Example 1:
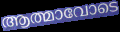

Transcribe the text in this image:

ആത്മാവോടെ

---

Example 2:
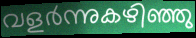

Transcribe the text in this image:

വളർന്നുകഴിഞ്ഞു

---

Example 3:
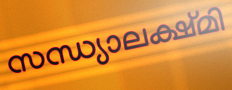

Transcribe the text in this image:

സന്ധ്യാലക്ഷ്മി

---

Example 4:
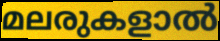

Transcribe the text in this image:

മലരുകളാൽ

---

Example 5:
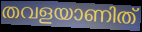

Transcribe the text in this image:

തവളയാണിത്